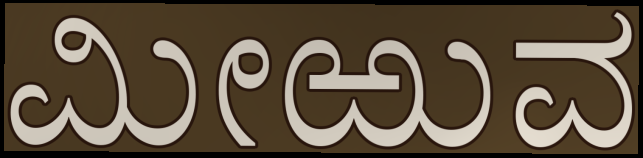
ಮೀಱುವ